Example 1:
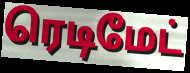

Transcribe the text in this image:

ரெடிமேட்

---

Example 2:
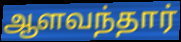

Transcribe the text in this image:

ஆளவந்தார்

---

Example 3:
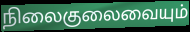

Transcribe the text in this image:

நிலைகுலைவையும்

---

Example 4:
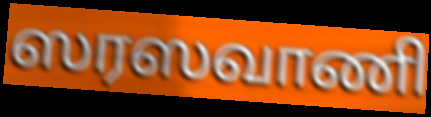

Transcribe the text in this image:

ஸரஸவாணி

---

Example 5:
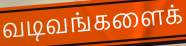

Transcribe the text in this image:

வடிவங்களைக்